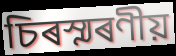
চিৰস্মৰণীয়